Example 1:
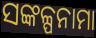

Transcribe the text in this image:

ସଙ୍କଳ୍ପନାମା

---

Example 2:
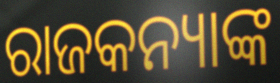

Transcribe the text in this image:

ରାଜକନ୍ୟାଙ୍କ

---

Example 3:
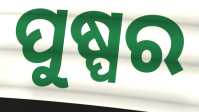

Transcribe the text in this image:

ପୁଷ୍ପର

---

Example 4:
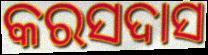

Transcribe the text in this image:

କରସଦାସ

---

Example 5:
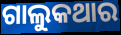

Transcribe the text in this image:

ଗାଲୁକଥାର